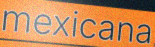
mexicana